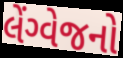
લેંગ્વેજનો